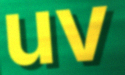
uv